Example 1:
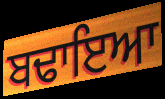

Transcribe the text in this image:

ਬਢਾਇਆ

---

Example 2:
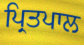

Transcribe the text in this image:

ਪ੍ਰਿਤਪਾਲ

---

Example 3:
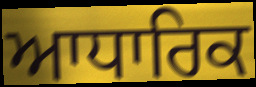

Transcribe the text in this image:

ਆਧਾਰਿਕ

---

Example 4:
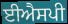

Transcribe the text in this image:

ਈਐਸਪੀ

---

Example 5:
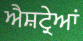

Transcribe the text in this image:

ਐਸ਼ਟ੍ਰੇਆਂ